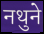
नथुने